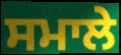
ਸਮਾਲੇ